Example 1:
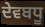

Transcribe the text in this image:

ਦੇਵਬਧੂ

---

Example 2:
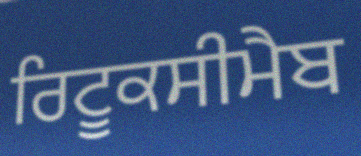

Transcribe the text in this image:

ਰਿਟੂਕਸੀਮੈਬ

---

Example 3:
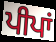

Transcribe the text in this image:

ਪੀਪਾਂ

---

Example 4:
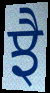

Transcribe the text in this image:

ਝੈ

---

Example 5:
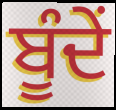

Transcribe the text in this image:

ਬੂੰਦੇਂ